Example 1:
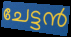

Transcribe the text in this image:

ചേട്ടൻ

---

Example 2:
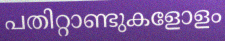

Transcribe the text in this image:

പതിറ്റാണ്ടുകളോളം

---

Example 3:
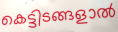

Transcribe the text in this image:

കെട്ടിടങ്ങളാൽ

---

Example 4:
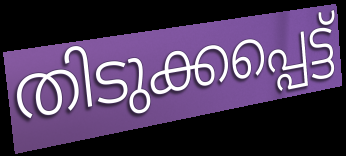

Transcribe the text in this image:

തിടുക്കപ്പെട്ട്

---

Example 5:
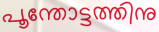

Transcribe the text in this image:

പൂന്തോട്ടത്തിനു